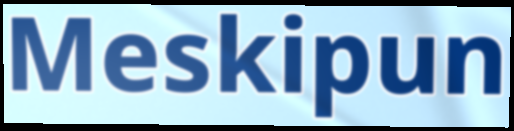
Meskipun